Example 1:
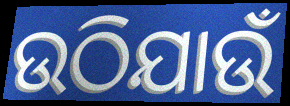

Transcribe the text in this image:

ଉଠିଯାଉଁ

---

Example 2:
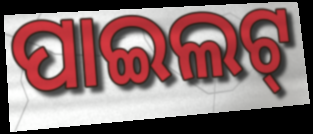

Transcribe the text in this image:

ପାଇଲଟ୍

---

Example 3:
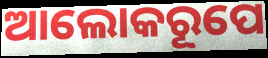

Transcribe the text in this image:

ଆଲୋକରୂପେ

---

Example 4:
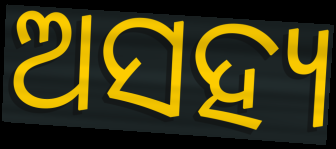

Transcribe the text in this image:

ଅସହ୍ଯ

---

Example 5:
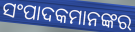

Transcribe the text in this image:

ସଂପାଦକମାନଙ୍କର